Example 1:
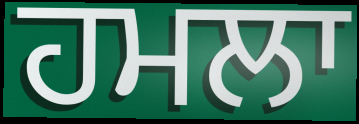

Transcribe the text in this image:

ਹਮਲਾ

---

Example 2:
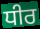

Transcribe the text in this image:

ਧੀਰ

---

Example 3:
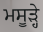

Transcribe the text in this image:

ਮਸੂੜ੍ਹੇ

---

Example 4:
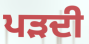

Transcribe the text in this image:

ਪੜਦੀ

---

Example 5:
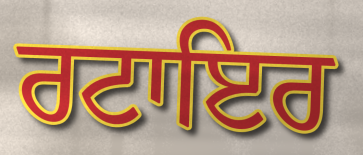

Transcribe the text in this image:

ਰਟਾਇਰ